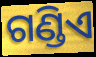
ଗଣ୍ଡିଏ